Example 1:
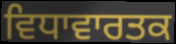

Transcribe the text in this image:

ਵਿਧਾਵਾਰਤਕ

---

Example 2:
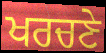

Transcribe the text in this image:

ਖਰਚਣੇ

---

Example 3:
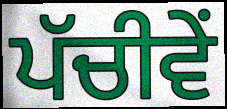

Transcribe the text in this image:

ਪੱਚੀਵੇਂ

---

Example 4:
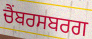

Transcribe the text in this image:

ਚੈਂਬਰਸਬਰਗ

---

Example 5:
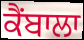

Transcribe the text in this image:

ਕੈਂਬਾਲਾ